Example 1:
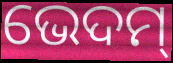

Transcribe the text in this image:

ଭେଦମ୍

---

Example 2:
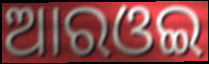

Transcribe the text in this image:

ଆରଓଇ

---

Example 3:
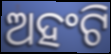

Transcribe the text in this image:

ଅହଂଟି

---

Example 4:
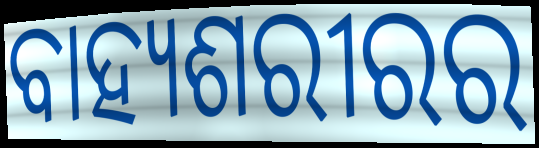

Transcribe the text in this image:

ବାହ୍ୟଶରୀରର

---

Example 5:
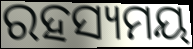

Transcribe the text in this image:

ରହସ୍ୟମୟ